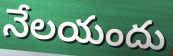
నేలయందు